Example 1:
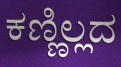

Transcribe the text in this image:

ಕಣ್ಣಿಲ್ಲದ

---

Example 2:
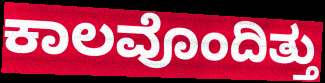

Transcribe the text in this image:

ಕಾಲವೊಂದಿತ್ತು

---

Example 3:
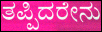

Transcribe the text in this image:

ತಪ್ಪಿದರೇನು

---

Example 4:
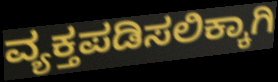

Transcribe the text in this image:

ವ್ಯಕ್ತಪಡಿಸಲಿಕ್ಕಾಗಿ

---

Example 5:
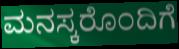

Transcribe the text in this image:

ಮನಸ್ಕರೊಂದಿಗೆ